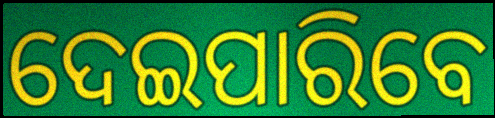
ଦେଇପାରିବେ